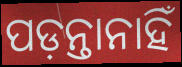
ପଡ଼ନ୍ତାନାହିଁ